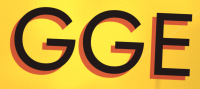
GGE